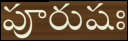
పూరుషః